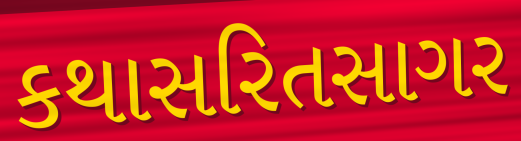
કથાસરિતસાગર